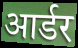
आर्डर